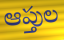
ఆప్తుల